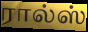
ரால்ஸ்